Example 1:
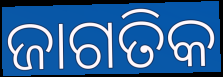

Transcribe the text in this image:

ଜାଗତିକ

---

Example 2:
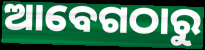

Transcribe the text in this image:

ଆବେଗଠାରୁ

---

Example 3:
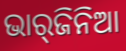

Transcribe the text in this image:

ଭାର୍‌ଜିନିଆ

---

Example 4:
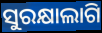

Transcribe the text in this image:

ସୁରକ୍ଷାଲାଗି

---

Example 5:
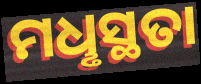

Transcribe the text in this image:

ମଧୢସ୍ଥତା